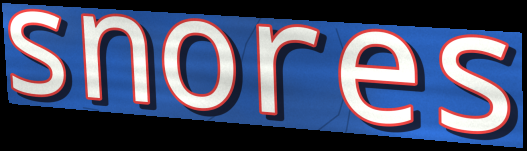
snores